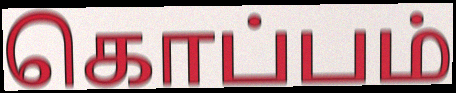
கொப்பம்